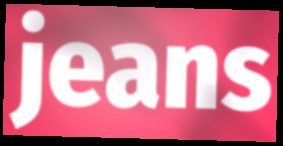
jeans